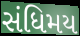
સંધિમય